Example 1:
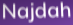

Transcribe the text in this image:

Najdah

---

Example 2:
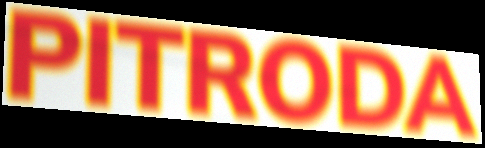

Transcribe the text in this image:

PITRODA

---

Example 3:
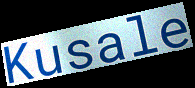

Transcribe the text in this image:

Kusale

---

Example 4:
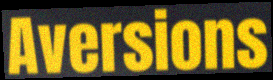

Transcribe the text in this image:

Aversions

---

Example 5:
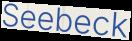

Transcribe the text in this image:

Seebeck